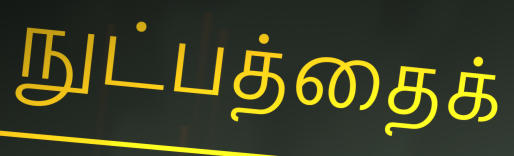
நுட்பத்தைக்